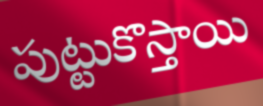
పుట్టుకొస్తాయి